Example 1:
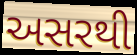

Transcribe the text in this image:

અસરથી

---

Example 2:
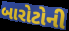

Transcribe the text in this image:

બારોટોની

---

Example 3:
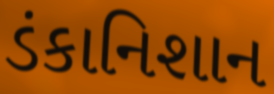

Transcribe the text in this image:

ડંકાનિશાન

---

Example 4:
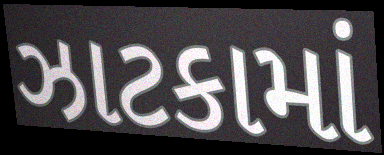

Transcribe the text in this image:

ઝાટકામાં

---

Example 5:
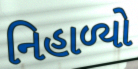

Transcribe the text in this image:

નિહાળ્યો